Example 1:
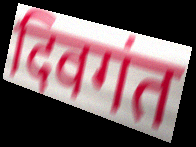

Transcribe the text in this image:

दिवगंत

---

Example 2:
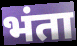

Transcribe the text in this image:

भंता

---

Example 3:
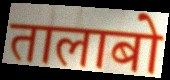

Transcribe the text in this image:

तालाबो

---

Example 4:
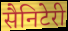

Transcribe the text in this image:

सैनिटेरी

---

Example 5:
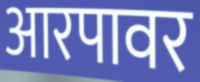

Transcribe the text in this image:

आरपावर